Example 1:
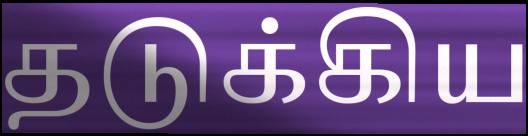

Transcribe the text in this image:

தடுக்கிய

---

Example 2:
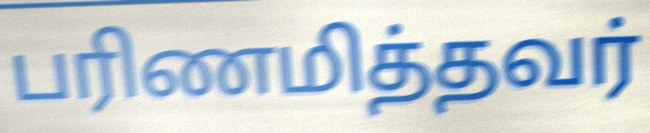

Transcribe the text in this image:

பரிணமித்தவர்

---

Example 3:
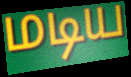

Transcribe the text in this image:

மடிய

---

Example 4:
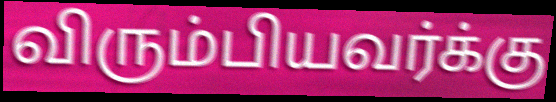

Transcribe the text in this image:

விரும்பியவர்க்கு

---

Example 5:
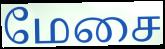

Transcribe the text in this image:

மேசை